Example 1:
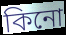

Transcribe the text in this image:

কিনো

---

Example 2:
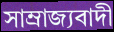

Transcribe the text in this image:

সাম্ৰাজ্যবাদী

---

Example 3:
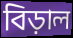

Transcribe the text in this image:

বিড়াল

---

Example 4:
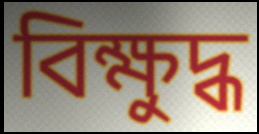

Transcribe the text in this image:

বিক্ষুদ্ধ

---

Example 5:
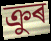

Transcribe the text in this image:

ক্ৰুৰ